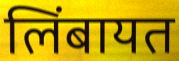
लिंबायत